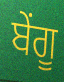
ਬੇਂਗੂ